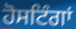
ਹੋਸਟਿੰਗਾਂ